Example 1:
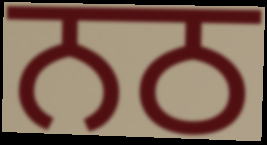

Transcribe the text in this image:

ਨਠ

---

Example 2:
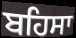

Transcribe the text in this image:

ਬਹਿਸਾ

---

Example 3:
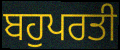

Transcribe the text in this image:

ਬਹੁਪਰਤੀ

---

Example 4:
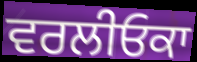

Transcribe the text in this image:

ਵਰਲੀਓਕਾ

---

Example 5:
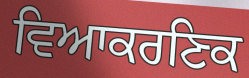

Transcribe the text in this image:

ਵਿਆਕਰਣਿਕ